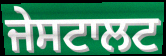
ਜੇਸਟਾਲਟ